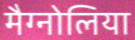
मैग्नोलिया